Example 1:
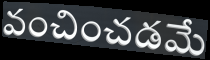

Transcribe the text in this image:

వంచించడమే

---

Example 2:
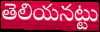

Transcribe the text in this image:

తెలియనట్టు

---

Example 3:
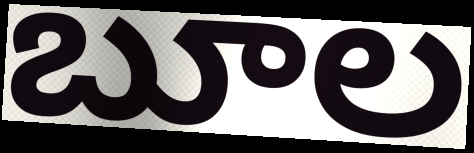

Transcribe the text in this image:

బూల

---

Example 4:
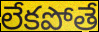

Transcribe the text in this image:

లేకపోతే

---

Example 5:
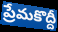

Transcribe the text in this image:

ప్రేమకొద్దీ